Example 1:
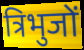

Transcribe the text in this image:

त्रिभुजों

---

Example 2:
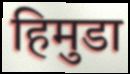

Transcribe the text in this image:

हिमुडा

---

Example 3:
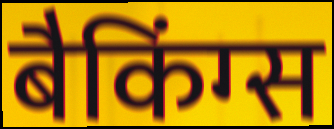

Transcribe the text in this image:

बैकिंग्स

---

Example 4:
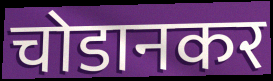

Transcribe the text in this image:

चोडानकर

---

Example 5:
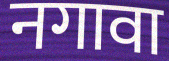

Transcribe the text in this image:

नगावा